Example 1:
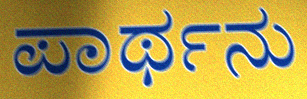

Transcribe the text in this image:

ಪಾರ್ಥನು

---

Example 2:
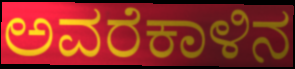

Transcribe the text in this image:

ಅವರೆಕಾಳಿನ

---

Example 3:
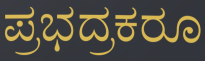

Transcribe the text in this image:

ಪ್ರಭದ್ರಕರೂ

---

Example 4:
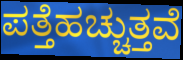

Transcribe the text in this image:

ಪತ್ತೆಹಚ್ಚುತ್ತವೆ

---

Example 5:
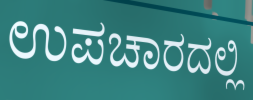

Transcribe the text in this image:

ಉಪಚಾರದಲ್ಲಿ